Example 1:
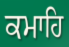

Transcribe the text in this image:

ਕਮਾਹਿ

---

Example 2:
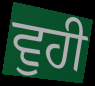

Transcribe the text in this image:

ਵੁਹੀ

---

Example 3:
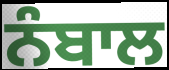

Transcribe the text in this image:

ਨੰਬਾਲ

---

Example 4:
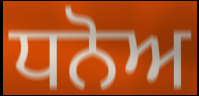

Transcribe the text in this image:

ਧਨੋਅ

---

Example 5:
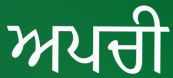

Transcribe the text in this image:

ਅਪਚੀ